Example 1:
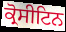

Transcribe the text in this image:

ਕ੍ਰੋਸੀਟਿਨ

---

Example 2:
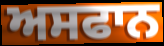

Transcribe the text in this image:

ਅਸਫਾਨ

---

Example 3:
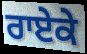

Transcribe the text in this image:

ਰਾਏਕੇ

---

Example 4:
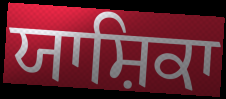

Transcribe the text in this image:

ਯਾਸ਼ਿਕਾ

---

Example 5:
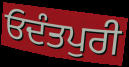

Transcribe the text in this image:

ਓਦੰਤਪੁਰੀ